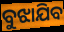
ବୁଝାଯିବ